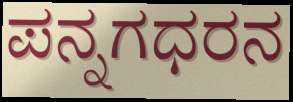
ಪನ್ನಗಧರನ